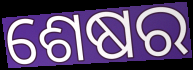
ଶେଷର